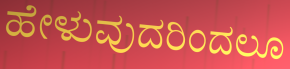
ಹೇಳುವುದರಿಂದಲೂ